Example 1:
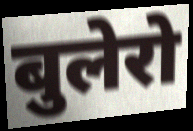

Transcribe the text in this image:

बुलेरो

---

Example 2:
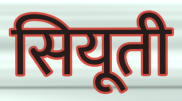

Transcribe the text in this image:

सियूती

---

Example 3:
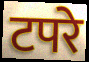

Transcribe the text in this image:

टपरे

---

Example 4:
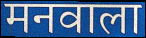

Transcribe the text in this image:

मनवाला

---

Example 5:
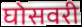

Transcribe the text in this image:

घोसवरी